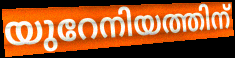
യുറേനിയത്തിന്